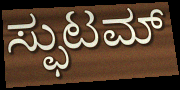
ಸ್ಫುಟಮ್